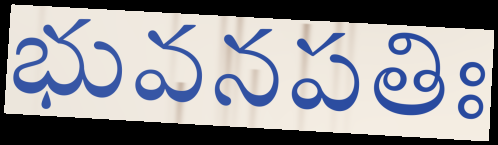
భువనపతిః